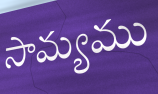
సామ్యము